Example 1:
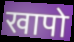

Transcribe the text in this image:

खापो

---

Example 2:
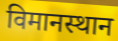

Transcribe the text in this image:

विमानस्थान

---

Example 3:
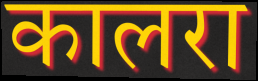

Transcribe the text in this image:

कालरा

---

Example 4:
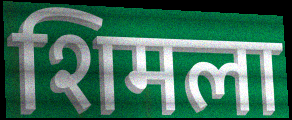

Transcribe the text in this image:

शिमला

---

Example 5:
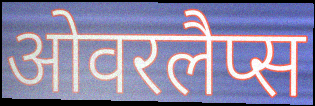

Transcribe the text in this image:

ओवरलैप्स